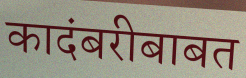
कादंबरीबाबत